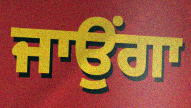
ਜਾਉਂਗਾ